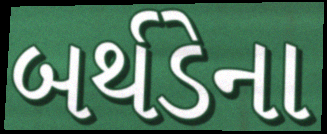
બર્થડેના